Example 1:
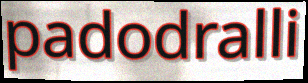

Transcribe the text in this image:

padodralli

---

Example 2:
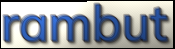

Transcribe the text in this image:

rambut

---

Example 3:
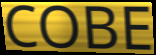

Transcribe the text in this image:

COBE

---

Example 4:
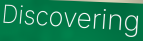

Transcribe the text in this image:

Discovering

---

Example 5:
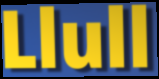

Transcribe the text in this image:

Llull